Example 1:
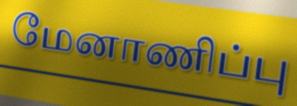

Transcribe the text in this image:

மேனாணிப்பு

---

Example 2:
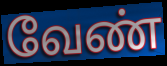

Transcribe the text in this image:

வேண்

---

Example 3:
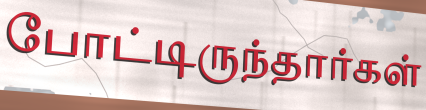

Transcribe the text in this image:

போட்டிருந்தார்கள்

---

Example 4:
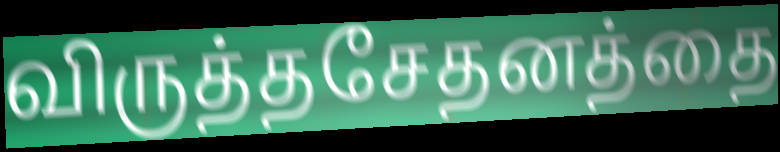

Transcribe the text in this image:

விருத்தசேதனத்தை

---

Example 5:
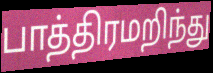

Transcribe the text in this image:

பாத்திரமறிந்து